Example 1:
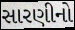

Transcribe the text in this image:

સારણીનો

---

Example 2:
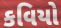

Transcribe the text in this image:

કવિયો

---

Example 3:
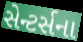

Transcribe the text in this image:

સેન્ટર્સના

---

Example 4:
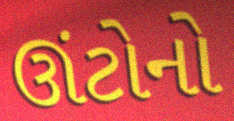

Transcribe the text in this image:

ઊંટોનો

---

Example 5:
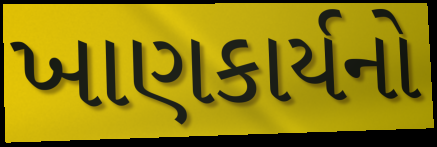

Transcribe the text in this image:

ખાણકાર્યનો